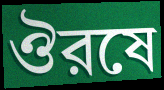
ঔরষে